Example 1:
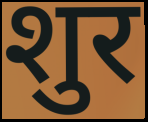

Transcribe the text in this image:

शुर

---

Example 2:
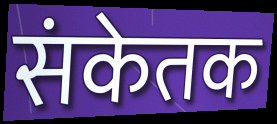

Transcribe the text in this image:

संकेतक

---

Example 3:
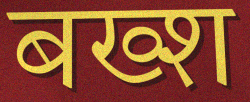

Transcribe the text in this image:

बख्श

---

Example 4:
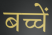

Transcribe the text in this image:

बच्चें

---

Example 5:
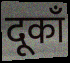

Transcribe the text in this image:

दूकाँ